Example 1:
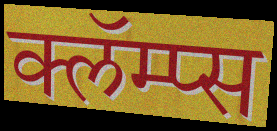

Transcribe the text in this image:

क्लॅम्प्स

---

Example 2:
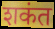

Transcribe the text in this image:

शकंत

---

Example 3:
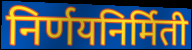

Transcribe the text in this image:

निर्णयनिर्मिती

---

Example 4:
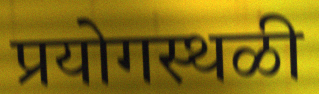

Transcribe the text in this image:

प्रयोगस्थळी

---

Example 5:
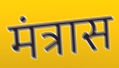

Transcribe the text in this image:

मंत्रास